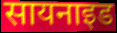
सायनाइड